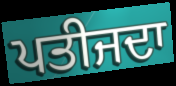
ਪਤੀਜਦਾ